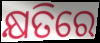
କ୍ଷତିରେ